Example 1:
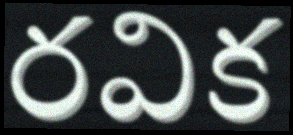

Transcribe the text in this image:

రవిక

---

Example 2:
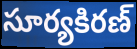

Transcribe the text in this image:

సూర్యకిరణ్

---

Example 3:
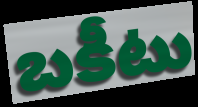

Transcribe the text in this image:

బకీటు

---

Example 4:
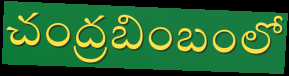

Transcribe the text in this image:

చంద్రబింబంలో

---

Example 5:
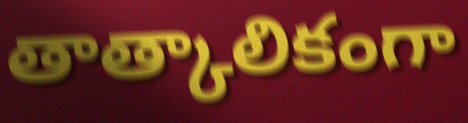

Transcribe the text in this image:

తాత్కాలికంగా